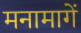
मनामागें